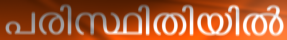
പരിസ്ഥിതിയിൽ